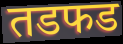
तडफड